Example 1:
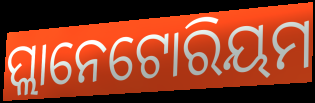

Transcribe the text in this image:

ପ୍ଲାନେଟୋରିୟମ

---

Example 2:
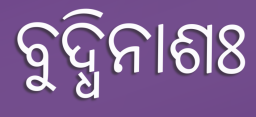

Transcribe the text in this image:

ବୁଦ୍ଧିନାଶଃ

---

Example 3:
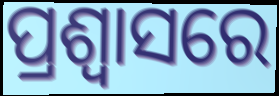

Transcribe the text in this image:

ପ୍ରଶ୍ଵାସରେ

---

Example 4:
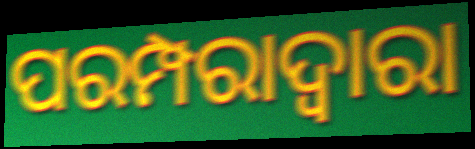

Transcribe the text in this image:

ପରମ୍ପରାଦ୍ବାରା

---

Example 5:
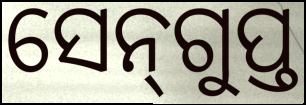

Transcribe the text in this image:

ସେନ୍‌ଗୁପ୍ତ